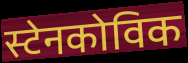
स्टेनकोविक